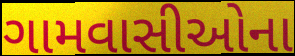
ગામવાસીઓના